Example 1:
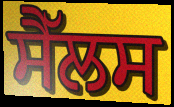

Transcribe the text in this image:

ਸੈੱਲਸ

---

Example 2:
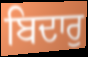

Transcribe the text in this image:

ਬਿਦਾਰੁ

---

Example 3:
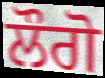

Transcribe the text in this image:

ਲੌਗੋ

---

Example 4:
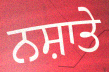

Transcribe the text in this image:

ਨਸ਼ਾਤੇ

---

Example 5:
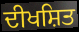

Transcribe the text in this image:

ਦੀਖਸ਼ਿਤ